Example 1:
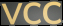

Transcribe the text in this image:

VCC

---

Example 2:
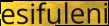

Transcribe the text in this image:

esifuleni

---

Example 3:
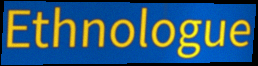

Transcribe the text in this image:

Ethnologue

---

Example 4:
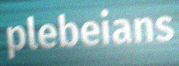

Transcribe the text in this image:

plebeians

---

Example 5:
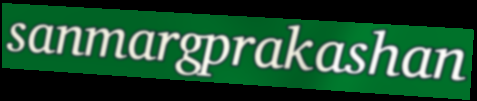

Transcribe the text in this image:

sanmargprakashan